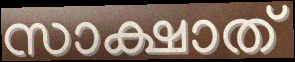
സാക്ഷാത്